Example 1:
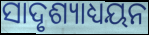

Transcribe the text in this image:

ସାଦୃଶ୍ୟାଧ୍ୟୟନ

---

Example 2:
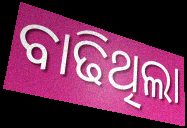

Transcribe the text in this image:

ବାଢିଥିଲା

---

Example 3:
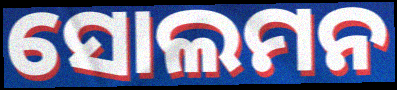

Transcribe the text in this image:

ସୋଲମନ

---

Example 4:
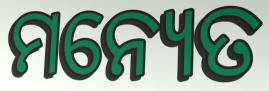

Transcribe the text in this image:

ମନ୍ୟେତ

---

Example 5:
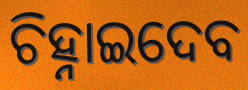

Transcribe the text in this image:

ଚିହ୍ନାଇଦେବ